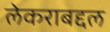
लेकराबद्दल